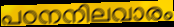
പഠനനിലവാരം